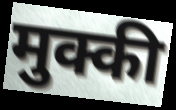
मुक्की